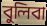
বুলিবা